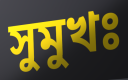
সুমুখঃ